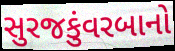
સુરજકુંવરબાનો